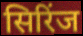
सिरिंज